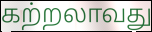
கற்றலாவது